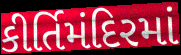
કીર્તિમંદિરમાં